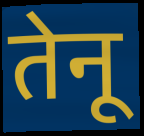
तेनू